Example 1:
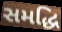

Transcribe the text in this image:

સમદ્ધિ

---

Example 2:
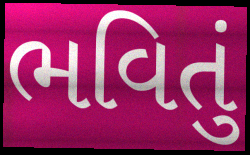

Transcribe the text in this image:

ભવિતું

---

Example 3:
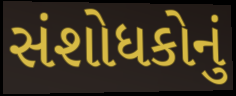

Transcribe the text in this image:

સંશોધકોનું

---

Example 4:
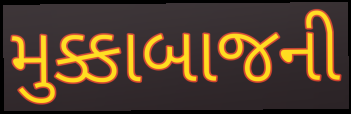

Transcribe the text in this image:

મુક્કાબાજની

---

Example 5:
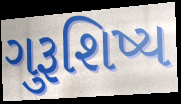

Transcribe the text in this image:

ગુરૂશિષ્ય